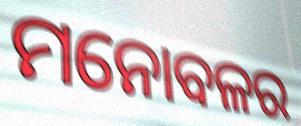
ମନୋବଳର